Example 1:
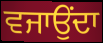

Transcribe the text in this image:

ਵਜਾਉਂਦਾ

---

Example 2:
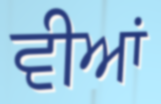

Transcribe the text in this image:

ਵੀਆਂ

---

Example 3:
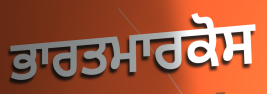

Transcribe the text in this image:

ਭਾਰਤਮਾਰਕੋਸ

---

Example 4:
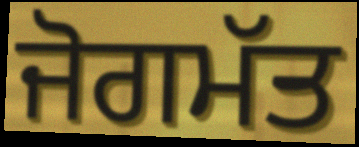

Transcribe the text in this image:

ਜੋਗਮੱਤ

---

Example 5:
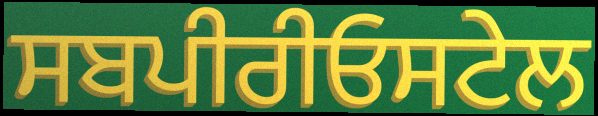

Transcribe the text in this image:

ਸਬਪੀਰੀਓਸਟੇਲ